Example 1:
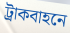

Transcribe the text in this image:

ট্রাকবাহনে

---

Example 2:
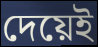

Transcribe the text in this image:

দেয়েই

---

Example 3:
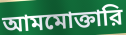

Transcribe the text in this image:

আমমোক্তারি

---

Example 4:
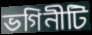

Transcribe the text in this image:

ভগিনীটি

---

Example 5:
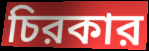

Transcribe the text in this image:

চিরকার